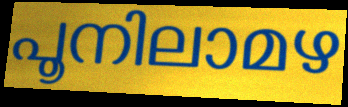
പൂനിലാമഴ